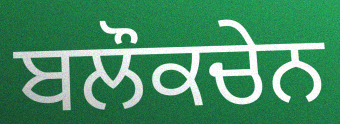
ਬਲੌਕਚੇਨ